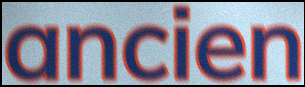
ancien